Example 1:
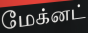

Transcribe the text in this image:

மேக்னட்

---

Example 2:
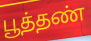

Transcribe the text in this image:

பூத்தண்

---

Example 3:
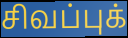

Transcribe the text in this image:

சிவப்புக்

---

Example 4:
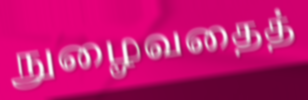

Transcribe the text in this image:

நுழைவதைத்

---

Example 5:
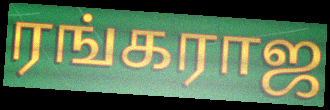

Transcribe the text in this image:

ரங்கராஜ